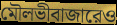
মৌলভীবাজারেও